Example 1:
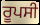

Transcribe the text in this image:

ਰੂਪਸੀ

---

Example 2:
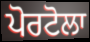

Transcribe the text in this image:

ਪੋਰਟੋਲਾ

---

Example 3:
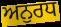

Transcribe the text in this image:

ਅਨੁਰਧ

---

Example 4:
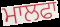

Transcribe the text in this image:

ਮਾਲਫਾ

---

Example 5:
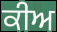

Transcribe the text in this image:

ਕੀਅ